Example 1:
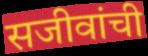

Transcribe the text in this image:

सजीवांची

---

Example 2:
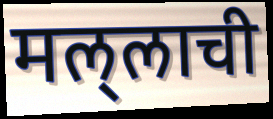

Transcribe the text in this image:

मल्लाची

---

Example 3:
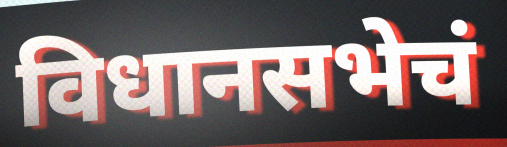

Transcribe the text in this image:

विधानसभेचं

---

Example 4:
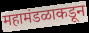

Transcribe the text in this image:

महामंडळाकडून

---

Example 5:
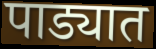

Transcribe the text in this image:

पाड्यात